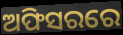
ଅଫିସରରେ